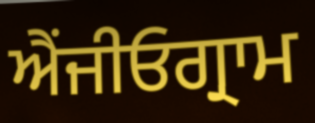
ਐਂਜੀਓਗ੍ਰਾਮ